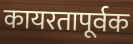
कायरतापूर्वक